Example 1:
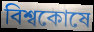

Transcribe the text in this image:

বিশ্বকোষে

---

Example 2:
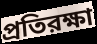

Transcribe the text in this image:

প্রতিরক্ষা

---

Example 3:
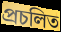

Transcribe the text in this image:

প্রচলিত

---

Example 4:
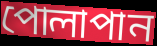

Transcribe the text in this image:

পোলাপান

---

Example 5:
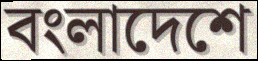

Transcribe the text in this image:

বংলাদেশে